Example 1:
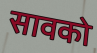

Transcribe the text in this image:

सावको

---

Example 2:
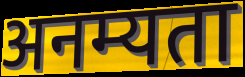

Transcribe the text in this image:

अनम्यता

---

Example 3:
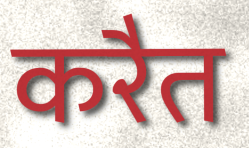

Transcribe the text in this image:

करैत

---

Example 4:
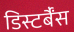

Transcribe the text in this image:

डिस्टर्बैंस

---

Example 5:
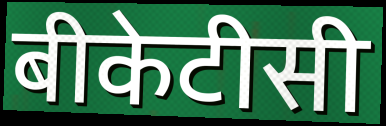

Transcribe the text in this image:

बीकेटीसी